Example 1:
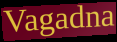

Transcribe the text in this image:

Vagadna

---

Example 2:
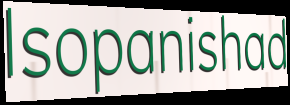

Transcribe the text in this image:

Isopanishad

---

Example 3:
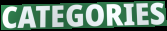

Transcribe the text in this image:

CATEGORIES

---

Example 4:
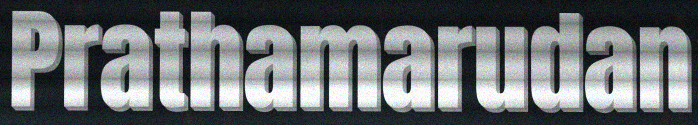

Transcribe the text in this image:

Prathamarudan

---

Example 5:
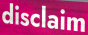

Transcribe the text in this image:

disclaim